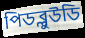
পিডব্লুউডি